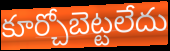
కూర్చోబెట్టలేదు